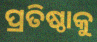
ପ୍ରତିଷ୍ଠାକୁ